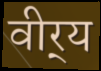
वीर्य